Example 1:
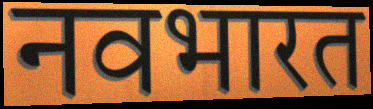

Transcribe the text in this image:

नवभारत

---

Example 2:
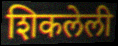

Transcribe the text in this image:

शिकलेली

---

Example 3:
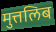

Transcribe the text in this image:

मुत्तलिब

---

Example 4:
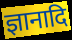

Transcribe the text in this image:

ज्ञानादि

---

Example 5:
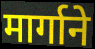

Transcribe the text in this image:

मार्गाने